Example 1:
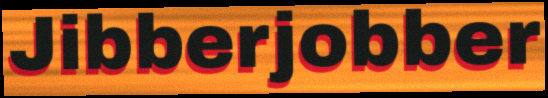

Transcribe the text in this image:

Jibberjobber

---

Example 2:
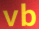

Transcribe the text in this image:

vb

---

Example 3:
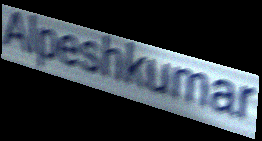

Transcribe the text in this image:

Alpeshkumar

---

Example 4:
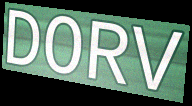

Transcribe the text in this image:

DORV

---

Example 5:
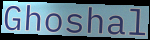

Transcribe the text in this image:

Ghoshal